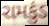
રામકુંડ